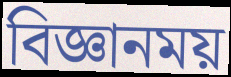
বিজ্ঞানময়